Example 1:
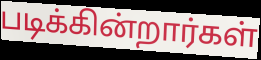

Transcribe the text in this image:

படிக்கின்றார்கள்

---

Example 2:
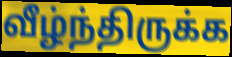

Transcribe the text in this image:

வீழ்ந்திருக்க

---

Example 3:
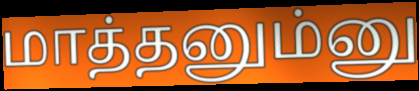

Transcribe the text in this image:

மாத்தனும்னு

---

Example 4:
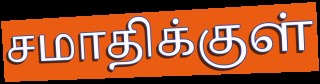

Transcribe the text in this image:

சமாதிக்குள்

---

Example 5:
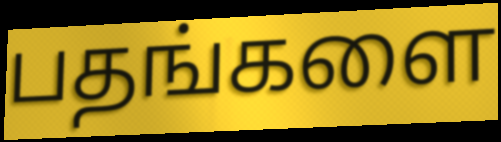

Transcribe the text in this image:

பதங்களை